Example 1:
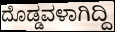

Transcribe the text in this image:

ದೊಡ್ಡವಳಾಗಿದ್ದಿ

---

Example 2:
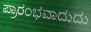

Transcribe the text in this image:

ಪ್ರಾರಂಭವಾದುದು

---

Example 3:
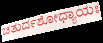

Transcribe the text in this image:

ಚತುರ್ದಶೋಧ್ಯಾಯಃ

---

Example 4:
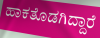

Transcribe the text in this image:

ಹಾಕತೊಡಗಿದ್ದಾರೆ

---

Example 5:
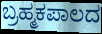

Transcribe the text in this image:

ಬ್ರಹ್ಮಕಪಾಲದ